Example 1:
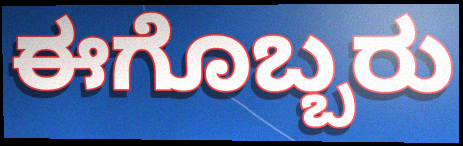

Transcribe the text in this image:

ಈಗೊಬ್ಬರು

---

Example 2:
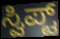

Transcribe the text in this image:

ಸ್ವಿಪ್ಟ್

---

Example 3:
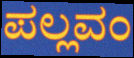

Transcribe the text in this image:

ಪಲ್ಲವಂ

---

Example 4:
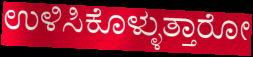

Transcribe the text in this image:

ಉಳಿಸಿಕೊಳ್ಳುತ್ತಾರೋ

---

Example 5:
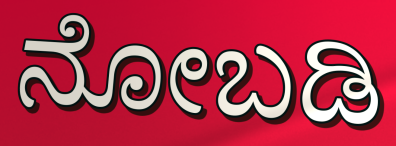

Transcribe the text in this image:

ನೋಬಡಿ